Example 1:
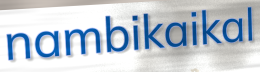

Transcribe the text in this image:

nambikaikal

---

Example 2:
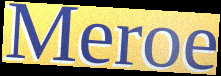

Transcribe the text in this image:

Meroe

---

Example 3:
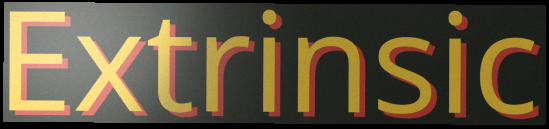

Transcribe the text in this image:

Extrinsic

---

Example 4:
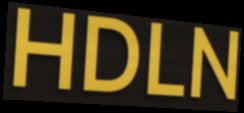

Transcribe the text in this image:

HDLN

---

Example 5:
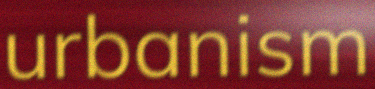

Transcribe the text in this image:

urbanism